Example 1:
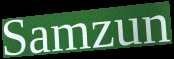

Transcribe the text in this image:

Samzun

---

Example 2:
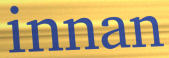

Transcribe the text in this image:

innan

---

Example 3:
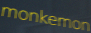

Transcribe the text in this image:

monkemon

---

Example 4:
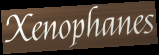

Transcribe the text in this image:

Xenophanes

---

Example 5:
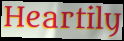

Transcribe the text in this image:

Heartily